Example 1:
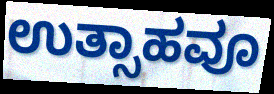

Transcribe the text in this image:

ಉತ್ಸಾಹವೂ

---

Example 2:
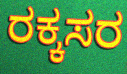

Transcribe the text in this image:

ರಕ್ಕಸರ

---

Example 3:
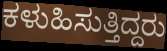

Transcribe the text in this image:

ಕಳುಹಿಸುತ್ತಿದ್ದರು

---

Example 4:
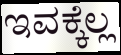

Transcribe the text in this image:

ಇವಕ್ಕೆಲ್ಲ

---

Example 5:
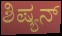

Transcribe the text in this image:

ಶಿಷ್ಯನ್